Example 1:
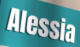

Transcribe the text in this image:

Alessia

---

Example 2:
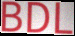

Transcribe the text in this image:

BDL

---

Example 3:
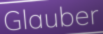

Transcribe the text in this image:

Glauber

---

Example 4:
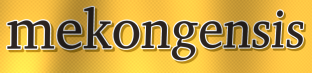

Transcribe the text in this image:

mekongensis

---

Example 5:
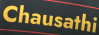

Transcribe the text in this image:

Chausathi